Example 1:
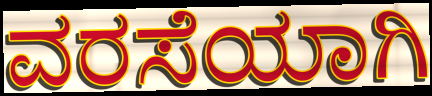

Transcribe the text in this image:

ವರಸೆಯಾಗಿ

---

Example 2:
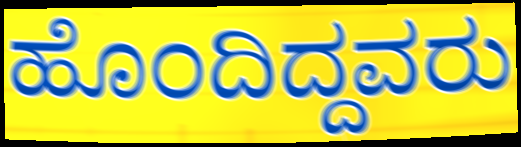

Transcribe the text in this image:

ಹೊಂದಿದ್ದವರು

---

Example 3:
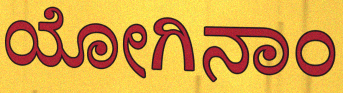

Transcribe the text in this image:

ಯೋಗಿನಾಂ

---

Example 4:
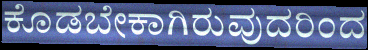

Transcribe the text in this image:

ಕೊಡಬೇಕಾಗಿರುವುದರಿಂದ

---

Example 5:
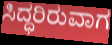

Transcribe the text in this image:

ಸಿದ್ಧರಿರುವಾಗ